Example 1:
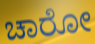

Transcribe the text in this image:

ಚಾರೋ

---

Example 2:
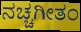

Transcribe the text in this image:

ನಚ್ಚಗೀತಂ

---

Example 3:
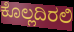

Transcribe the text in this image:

ಕೊಲ್ಲದಿರಲಿ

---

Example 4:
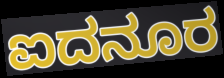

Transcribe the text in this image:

ಐದನೂರ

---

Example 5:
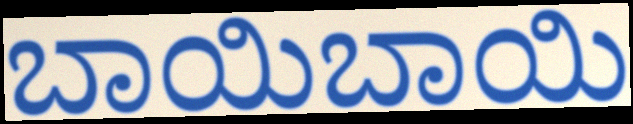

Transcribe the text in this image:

ಬಾಯಿಬಾಯಿ